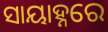
ସାୟାହ୍ନରେ